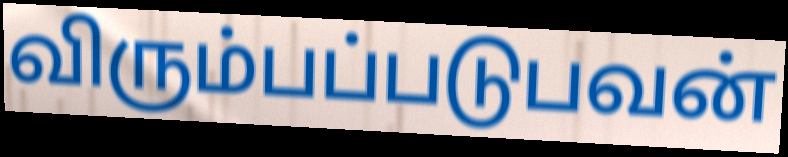
விரும்பப்படுபவன்